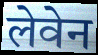
लेवेन